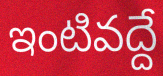
ఇంటివద్దే